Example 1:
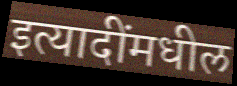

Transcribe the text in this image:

इत्यादींमधील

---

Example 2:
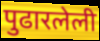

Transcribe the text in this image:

पुढारलेली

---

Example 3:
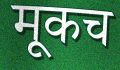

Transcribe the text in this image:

मूकच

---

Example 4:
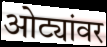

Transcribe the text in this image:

ओट्यांवर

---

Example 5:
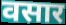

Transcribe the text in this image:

वसार